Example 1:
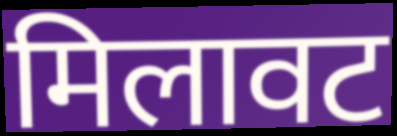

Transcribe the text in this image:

मिलावट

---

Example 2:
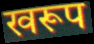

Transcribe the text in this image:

खरूप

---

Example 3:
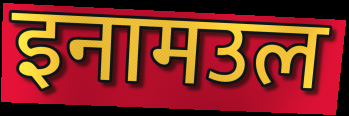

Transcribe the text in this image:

इनामउल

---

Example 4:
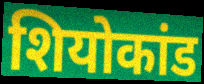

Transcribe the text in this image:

शियोकांड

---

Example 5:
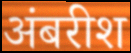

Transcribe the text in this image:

अंबरीश